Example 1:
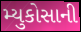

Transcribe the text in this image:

મ્યુકોસાની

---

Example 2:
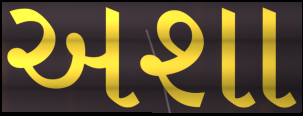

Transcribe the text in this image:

અશા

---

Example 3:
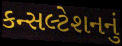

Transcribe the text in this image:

કન્સલ્ટેશનનું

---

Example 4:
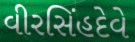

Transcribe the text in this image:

વીરસિંહદેવે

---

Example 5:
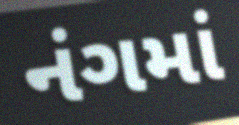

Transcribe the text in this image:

નંગમાં